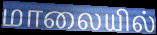
மாலையில்